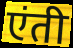
एंती